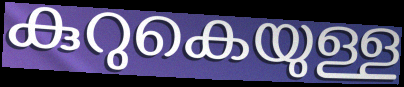
കുറുകെയുള്ള